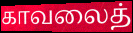
காவலைத்